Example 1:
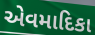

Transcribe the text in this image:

એવમાદિકા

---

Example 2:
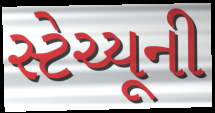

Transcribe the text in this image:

સ્ટેચ્યૂની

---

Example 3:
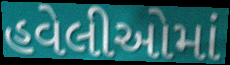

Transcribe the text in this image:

હવેલીઓમાં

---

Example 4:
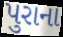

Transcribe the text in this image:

પુરાના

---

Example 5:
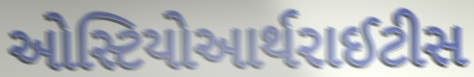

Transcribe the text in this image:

ઓસ્ટિયોઆર્થરાઈટીસ